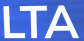
LTA